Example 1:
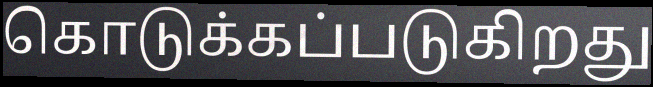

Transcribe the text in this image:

கொடுக்கப்படுகிறது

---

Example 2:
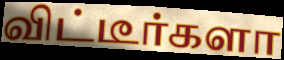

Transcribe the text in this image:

விட்டீர்களா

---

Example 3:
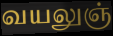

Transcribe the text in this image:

வயலுஞ்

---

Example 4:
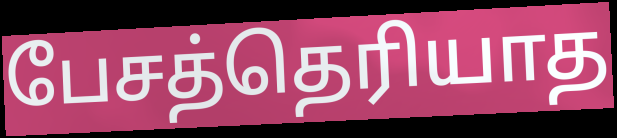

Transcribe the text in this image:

பேசத்தெரியாத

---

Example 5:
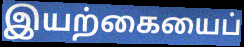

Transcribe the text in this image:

இயற்கையைப்